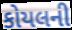
કોયલની